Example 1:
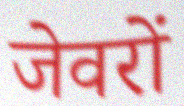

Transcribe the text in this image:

जेवरों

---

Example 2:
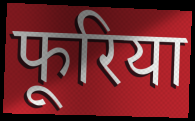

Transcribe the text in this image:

फूरिया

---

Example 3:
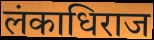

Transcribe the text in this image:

लंकाधिराज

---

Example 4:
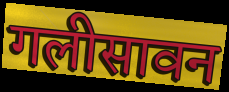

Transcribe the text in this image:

गलीसावन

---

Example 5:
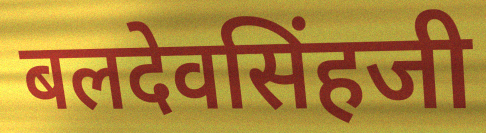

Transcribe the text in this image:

बलदेवसिंहजी